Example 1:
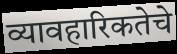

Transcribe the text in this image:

व्यावहारिकतेचे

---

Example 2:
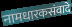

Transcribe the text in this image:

नामधारकसंवादे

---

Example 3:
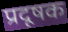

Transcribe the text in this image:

प्रदूषक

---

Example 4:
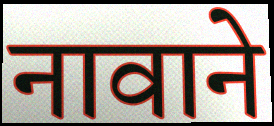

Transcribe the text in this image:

नावाने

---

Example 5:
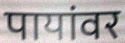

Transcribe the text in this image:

पायांवर